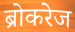
ब्रोकरेज